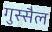
गुस्सैल